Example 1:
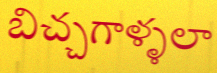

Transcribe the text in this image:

బిచ్చగాళ్ళలా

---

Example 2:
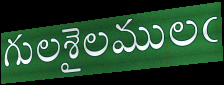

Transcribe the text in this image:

గులశైలములఁ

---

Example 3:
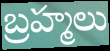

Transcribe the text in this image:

బ్రహ్మలు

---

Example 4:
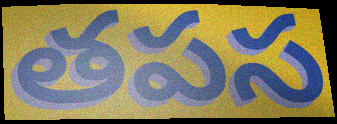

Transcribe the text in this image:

తపస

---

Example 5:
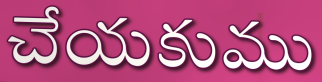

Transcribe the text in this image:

చేయకుము